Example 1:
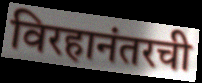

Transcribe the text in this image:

विरहानंतरची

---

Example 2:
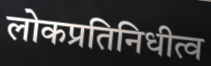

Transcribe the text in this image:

लोकप्रतिनिधीत्व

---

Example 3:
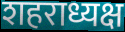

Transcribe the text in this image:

शहराध्यक्ष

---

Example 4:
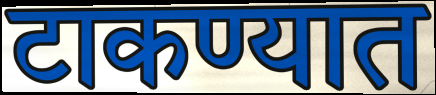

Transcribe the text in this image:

टाकण्यात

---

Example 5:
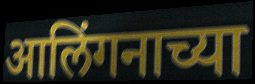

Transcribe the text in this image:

आलिंगनाच्या